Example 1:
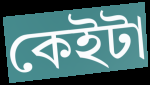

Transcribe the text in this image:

কেইটা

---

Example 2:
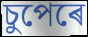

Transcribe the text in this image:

চুপেৰে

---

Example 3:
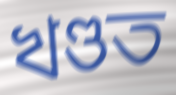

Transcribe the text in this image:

খণ্ডত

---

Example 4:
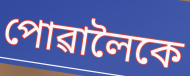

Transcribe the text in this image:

পোৱালৈকে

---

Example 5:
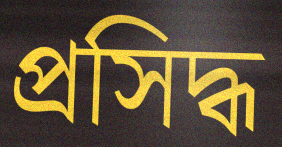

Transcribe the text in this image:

প্ৰসিদ্ধ